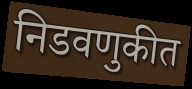
निडवणुकीत